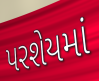
પરશેયમાં